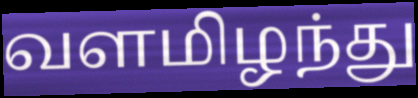
வளமிழந்து